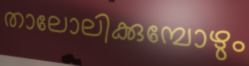
താലോലിക്കുമ്പോഴും